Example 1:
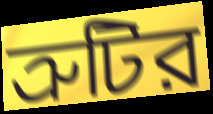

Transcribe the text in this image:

ত্রুটির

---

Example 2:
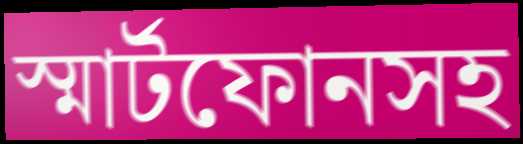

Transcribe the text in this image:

স্মার্টফোনসহ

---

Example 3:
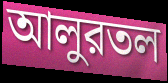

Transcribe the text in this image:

আলুরতল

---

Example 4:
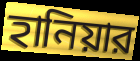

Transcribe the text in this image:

হানিয়ার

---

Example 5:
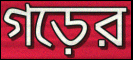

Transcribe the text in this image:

গড়ের